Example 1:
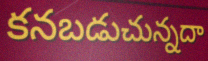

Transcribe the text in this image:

కనబడుచున్నదా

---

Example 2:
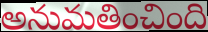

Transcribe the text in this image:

అనుమతించింది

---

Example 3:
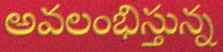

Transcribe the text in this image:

అవలంభిస్తున్న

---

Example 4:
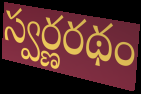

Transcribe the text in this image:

స్వర్ణరథం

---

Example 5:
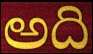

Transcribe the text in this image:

అది